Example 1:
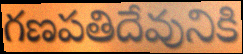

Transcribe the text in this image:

గణపతిదేవునికి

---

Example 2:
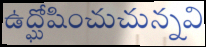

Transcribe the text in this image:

ఉద్ఘోషించుచున్నవి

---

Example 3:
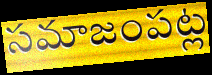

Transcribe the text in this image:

సమాజంపట్ల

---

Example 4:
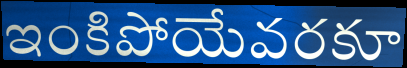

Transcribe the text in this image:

ఇంకిపోయేవరకూ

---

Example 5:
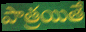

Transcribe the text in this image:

పాత్రయితే